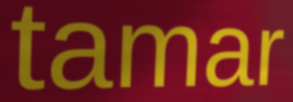
tamar